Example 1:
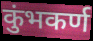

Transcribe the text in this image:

कुंभकर्ण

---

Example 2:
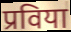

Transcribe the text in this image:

प्रविया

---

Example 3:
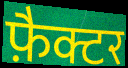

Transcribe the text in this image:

फ़ैक्टर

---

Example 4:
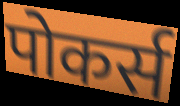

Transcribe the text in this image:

पोकर्स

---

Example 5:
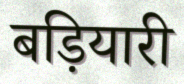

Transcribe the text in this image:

बड़ियारी